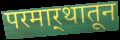
परमार्थातून